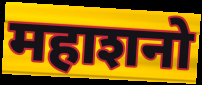
महाशनो